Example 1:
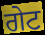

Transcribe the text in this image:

ਗੇਟ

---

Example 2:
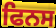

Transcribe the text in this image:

ਫਿਨਸ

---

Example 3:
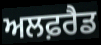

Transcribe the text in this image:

ਅਲਫ਼ਰੈਡ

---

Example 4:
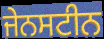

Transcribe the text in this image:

ਜੇਨਸਟੀਨ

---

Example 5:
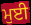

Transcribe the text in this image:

ਮੁਈ